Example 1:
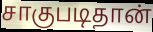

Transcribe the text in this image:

சாகுபடிதான்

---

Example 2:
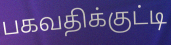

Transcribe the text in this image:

பகவதிக்குட்டி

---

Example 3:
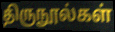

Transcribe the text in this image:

திருநூல்கள்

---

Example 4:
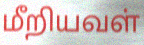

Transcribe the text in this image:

மீறியவள்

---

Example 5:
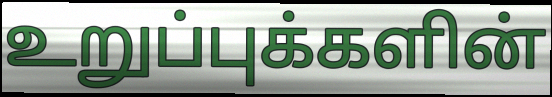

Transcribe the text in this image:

உறுப்புக்களின்